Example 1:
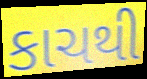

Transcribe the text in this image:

કાચથી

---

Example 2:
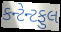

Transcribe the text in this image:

કન્ટેન્ટફુલ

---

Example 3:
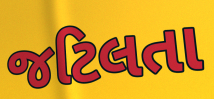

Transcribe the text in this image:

જટિલતા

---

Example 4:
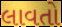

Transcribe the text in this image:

લાવતો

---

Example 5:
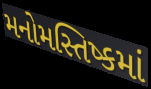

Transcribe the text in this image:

મનોમસ્તિષ્કમાં